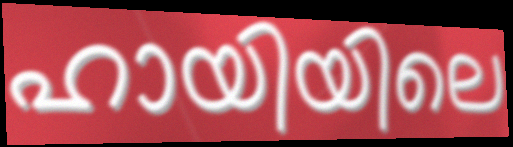
ഹായിയിലെ